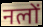
नलों